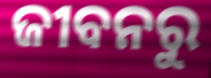
ଜୀବନରୁ